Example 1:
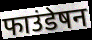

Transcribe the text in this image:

फाउंडेषन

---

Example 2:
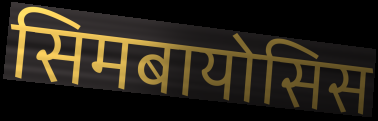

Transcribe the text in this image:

सिमबायोसिस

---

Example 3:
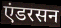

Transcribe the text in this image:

एंडरसन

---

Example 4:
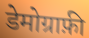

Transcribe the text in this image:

डेमोग्राफ़ी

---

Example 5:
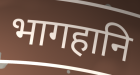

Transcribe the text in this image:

भागहानि